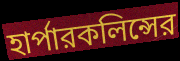
হার্পারকলিন্সের